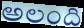
అలంది